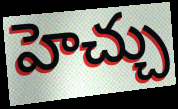
హెచ్చు